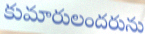
కుమారులందరును